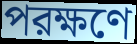
পরক্ষণে